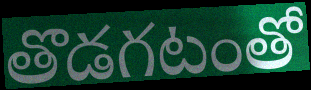
తొడగటంతో